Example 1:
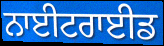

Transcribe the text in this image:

ਨਾਈਟਰਾਈਡ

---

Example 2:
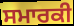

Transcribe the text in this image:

ਸਮਾਰਕੀ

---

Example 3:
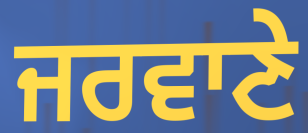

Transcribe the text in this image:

ਜਰਵਾਣੇ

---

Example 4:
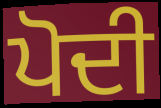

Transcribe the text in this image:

ਪੋਦੀ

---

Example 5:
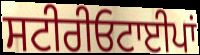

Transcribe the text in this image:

ਸਟੀਰੀਓਟਾਈਪਾਂ